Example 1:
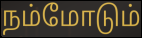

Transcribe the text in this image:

நம்மோடும்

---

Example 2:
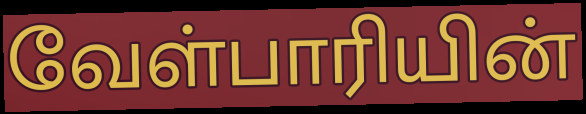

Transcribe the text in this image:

வேள்பாரியின்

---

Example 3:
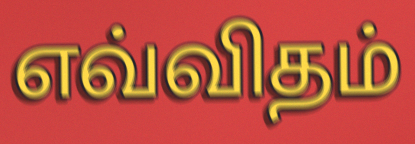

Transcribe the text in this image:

எவ்விதம்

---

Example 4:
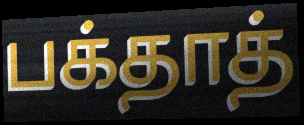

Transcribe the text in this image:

பக்தாத்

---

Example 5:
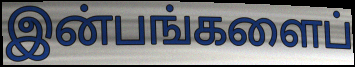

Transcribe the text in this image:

இன்பங்களைப்